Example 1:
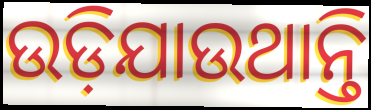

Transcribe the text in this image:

ଉଡ଼ିଯାଉଥାନ୍ତି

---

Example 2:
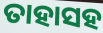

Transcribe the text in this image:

ତାହାସହ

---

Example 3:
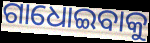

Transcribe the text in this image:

ଗାଧୋଇବାକୁ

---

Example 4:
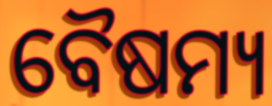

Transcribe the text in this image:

ବୈଷମ୍ୟ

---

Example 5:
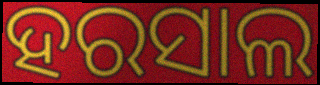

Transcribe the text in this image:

ହରସାଲ